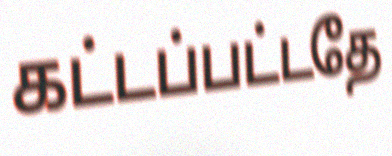
கட்டப்பட்டதே